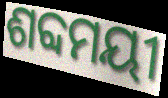
ଶବ୍ଦମୟୀ